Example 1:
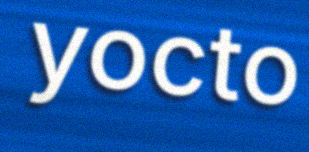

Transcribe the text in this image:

yocto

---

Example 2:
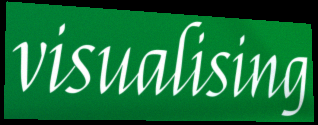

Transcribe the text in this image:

visualising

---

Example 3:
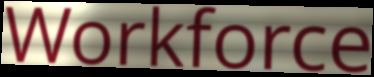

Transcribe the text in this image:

Workforce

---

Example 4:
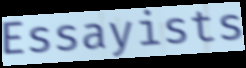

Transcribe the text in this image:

Essayists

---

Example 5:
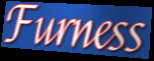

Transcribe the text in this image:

Furness